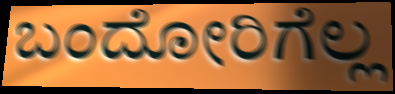
ಬಂದೋರಿಗೆಲ್ಲ